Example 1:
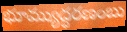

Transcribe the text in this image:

భూమ్యుద్ధరణంబు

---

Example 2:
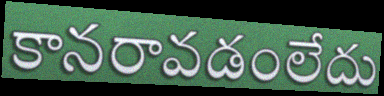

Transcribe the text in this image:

కానరావడంలేదు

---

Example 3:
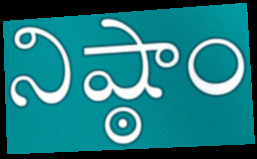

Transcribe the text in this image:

నిష్ఠాం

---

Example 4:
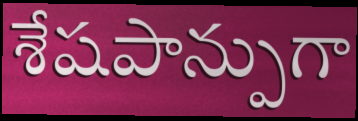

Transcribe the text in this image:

శేషపాన్పుగా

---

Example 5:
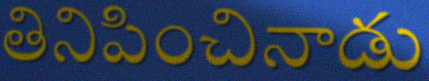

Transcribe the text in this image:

తినిపించినాడు